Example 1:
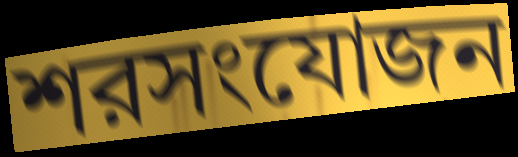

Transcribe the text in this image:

শরসংযোজন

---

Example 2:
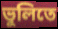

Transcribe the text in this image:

ভুলিতে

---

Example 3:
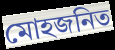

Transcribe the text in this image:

মোহজনিত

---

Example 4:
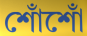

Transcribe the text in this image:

শোঁশোঁ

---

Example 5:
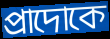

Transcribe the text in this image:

প্রাদোকে